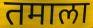
तमाला